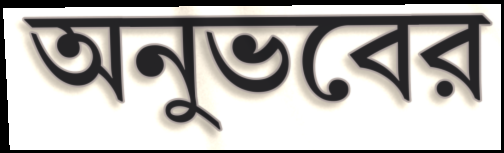
অনুভবের